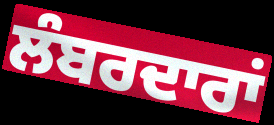
ਲੰਬਰਦਾਰਾਂ